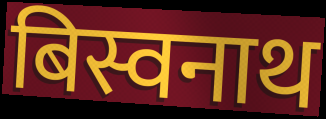
बिस्वनाथ